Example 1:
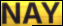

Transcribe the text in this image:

NAY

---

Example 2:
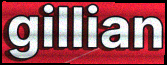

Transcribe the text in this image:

gillian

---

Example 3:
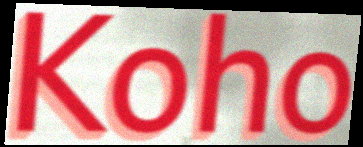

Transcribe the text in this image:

Koho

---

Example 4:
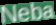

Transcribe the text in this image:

Neba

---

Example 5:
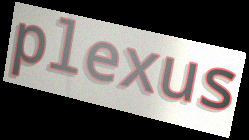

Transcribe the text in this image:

plexus